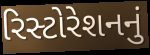
રિસ્ટોરેશનનું